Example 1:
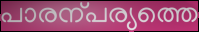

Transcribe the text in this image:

പാരന്പര്യത്തെ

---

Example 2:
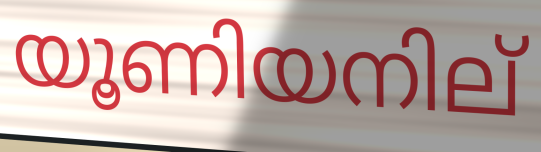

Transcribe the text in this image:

യൂണിയനില്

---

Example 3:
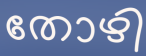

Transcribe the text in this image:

തോഴി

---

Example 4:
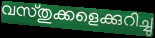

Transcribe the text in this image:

വസ്തുക്കളെക്കുറിച്ചു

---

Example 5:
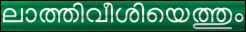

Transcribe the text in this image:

ലാത്തിവീശിയെത്തും